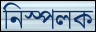
নিস্পলক